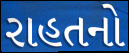
રાહતનો